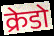
क्रेडो